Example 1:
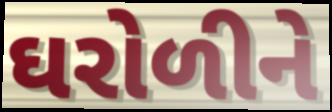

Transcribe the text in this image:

ઘરોળીને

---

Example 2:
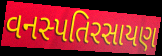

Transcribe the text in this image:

વનસ્પતિરસાયણ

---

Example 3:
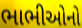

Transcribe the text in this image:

ભાભીઓનો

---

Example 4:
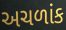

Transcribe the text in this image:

અચળાંક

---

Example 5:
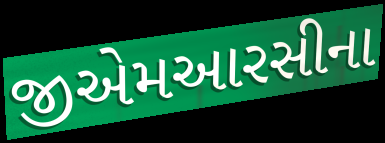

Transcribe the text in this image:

જીએમઆરસીના